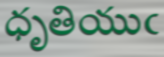
ధృతియుఁ